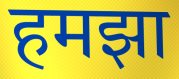
हमझा